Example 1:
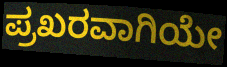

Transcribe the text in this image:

ಪ್ರಖರವಾಗಿಯೇ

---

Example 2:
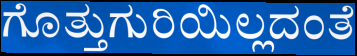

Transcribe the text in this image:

ಗೊತ್ತುಗುರಿಯಿಲ್ಲದಂತೆ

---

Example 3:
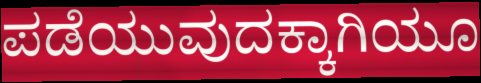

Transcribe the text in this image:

ಪಡೆಯುವುದಕ್ಕಾಗಿಯೂ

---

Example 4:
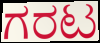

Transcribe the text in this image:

ಗರಟ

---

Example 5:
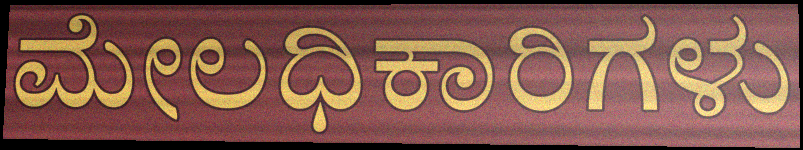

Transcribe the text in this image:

ಮೇಲಧಿಕಾರಿಗಳು